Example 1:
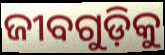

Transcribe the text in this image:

ଜୀବଗୁଡ଼ିକୁ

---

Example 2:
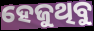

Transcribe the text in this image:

ହେଜୁଥିବୁ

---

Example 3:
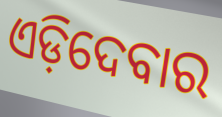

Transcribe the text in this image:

ଏଡ଼ିଦେବାର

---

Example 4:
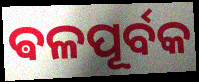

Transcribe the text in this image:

ଵଳପୂର୍ବକ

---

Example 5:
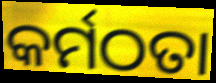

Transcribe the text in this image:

କର୍ମଠତା